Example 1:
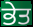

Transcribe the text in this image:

ਭੇਤ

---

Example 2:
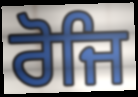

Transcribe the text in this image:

ਰੋਜਿ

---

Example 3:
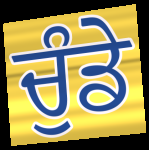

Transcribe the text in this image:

ਚੁੰਡੇ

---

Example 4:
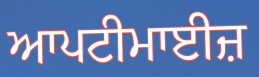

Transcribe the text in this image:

ਆਪਟੀਮਾਈਜ਼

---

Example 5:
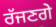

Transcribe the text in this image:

ਰੱਜਣਗੇ